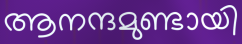
ആനന്ദമുണ്ടായി